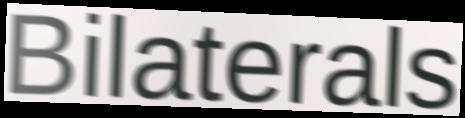
Bilaterals